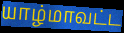
யாழ்மாவட்ட